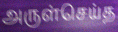
அருள்செய்த